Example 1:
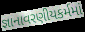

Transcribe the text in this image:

જ્ઞાનાવરણીયકર્મમાં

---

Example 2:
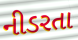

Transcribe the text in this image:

નીડરતા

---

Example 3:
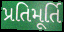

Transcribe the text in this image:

પ્રતિમૂર્તિ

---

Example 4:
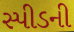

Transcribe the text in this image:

સ્પીડની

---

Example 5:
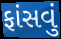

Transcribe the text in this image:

ફાંસવું